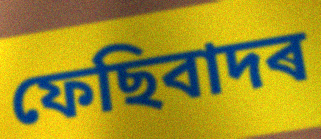
ফেছিবাদৰ